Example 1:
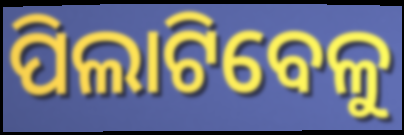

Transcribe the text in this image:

ପିଲାଟିବେଳୁ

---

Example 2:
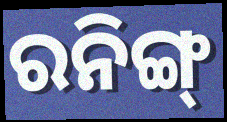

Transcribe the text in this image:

ରନିଙ୍ଗ୍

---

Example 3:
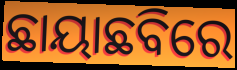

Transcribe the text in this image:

ଛାୟାଛବିରେ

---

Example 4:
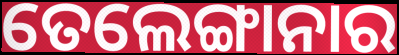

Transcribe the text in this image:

ତେଲେଙ୍ଗାନାର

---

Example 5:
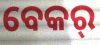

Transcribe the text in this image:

ବେକର୍